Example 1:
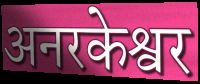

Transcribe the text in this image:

अनरकेश्वर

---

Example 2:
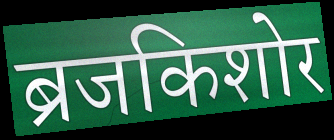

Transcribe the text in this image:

ब्रजकिशोर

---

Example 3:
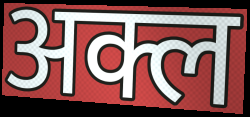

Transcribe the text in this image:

अक्ल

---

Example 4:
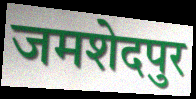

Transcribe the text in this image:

जमशेदपुर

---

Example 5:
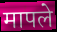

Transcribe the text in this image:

मापले